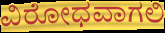
ವಿರೋಧವಾಗಲಿ